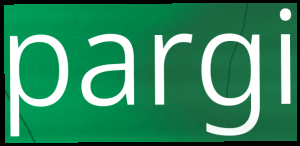
pargi